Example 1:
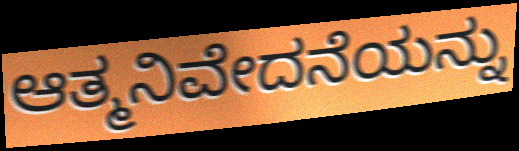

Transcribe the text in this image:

ಆತ್ಮನಿವೇದನೆಯನ್ನು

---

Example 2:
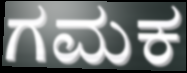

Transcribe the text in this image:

ಗಮಕ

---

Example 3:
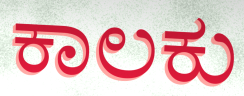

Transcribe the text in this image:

ಕಾಲಕು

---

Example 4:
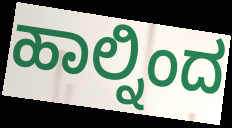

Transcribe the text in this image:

ಹಾಲ್ನಿಂದ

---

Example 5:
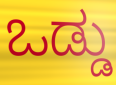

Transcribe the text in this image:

ಒಡ್ಡು